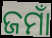
ଜମାଁ